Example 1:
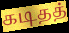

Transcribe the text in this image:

கடிதத்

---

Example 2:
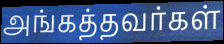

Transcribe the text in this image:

அங்கத்தவர்கள்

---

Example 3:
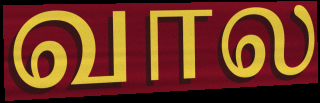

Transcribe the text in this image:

வால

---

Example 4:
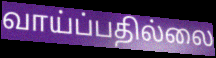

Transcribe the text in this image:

வாய்ப்பதில்லை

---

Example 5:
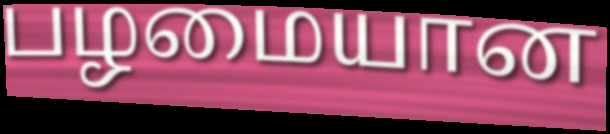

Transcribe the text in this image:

பழமையான